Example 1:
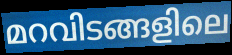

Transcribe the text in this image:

മറവിടങ്ങളിലെ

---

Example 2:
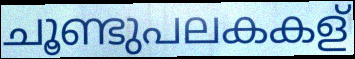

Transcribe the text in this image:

ചൂണ്ടുപലകകള്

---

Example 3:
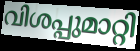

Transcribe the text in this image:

വിശപ്പുമാറ്റി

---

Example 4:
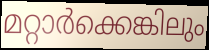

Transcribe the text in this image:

മറ്റാർക്കെങ്കിലും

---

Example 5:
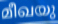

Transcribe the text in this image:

മീഖയു